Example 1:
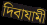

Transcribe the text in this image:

দিবাযামী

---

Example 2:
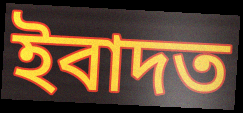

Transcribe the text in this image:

ইবাদত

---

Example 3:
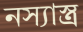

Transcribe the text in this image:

নস্যাস্ত্র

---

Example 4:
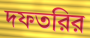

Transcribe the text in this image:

দফতরির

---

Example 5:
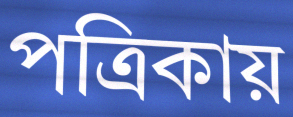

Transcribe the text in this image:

পত্রিকায়